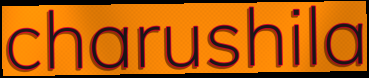
charushila